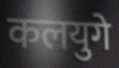
कलयुगे